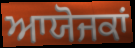
ਆਯੋਜਕਾਂ